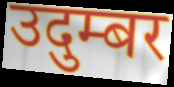
उदुम्बर